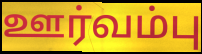
ஊர்வம்பு